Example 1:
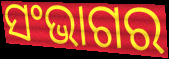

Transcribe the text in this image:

ସଂଭାଗର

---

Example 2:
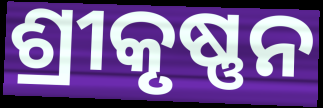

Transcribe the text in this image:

ଶ୍ରୀକୃଷ୍ଣନ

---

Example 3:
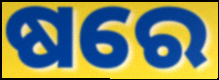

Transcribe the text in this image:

ଷରେ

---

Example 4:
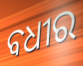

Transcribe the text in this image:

ବଧୀର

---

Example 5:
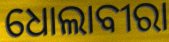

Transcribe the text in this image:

ଧୋଲାବୀରା